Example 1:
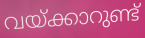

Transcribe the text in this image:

വയ്ക്കാറുണ്ട്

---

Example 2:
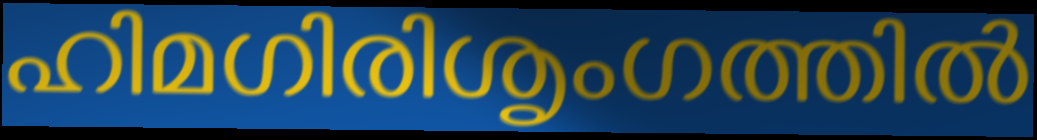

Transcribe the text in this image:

ഹിമഗിരിശൃംഗത്തിൽ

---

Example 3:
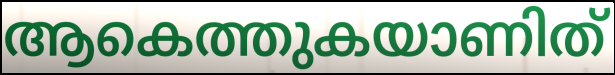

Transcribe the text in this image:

ആകെത്തുകയാണിത്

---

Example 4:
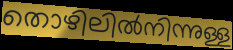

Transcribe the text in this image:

തൊഴിലിൽനിന്നുള്ള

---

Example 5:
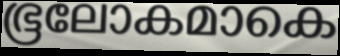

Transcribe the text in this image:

ഭൂലോകമാകെ